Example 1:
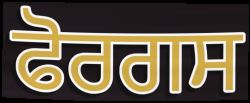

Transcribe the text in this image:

ਫੋਰਗਸ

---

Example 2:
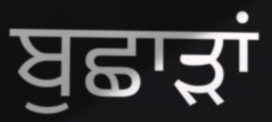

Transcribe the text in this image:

ਬੁਛਾੜਾਂ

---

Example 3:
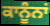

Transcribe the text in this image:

ਕਾਨੂੰਨਾਂ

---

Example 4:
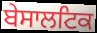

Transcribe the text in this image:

ਬੇਸਾਲਟਿਕ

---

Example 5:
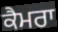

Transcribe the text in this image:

ਕੈਮਰਾ